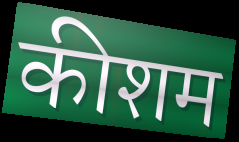
कीशम